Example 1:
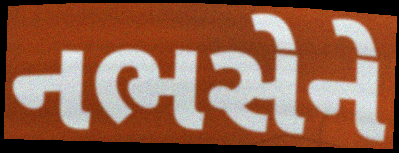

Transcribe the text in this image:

નભસેને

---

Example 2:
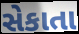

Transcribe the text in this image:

સેકાતા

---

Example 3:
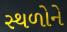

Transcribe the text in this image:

સ્થળોને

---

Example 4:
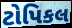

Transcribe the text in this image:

ટોપિકલ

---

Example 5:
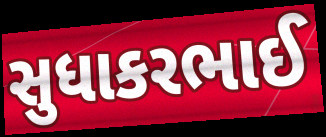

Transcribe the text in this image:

સુધાકરભાઈ